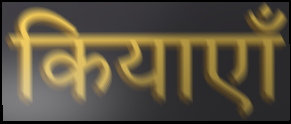
कियाएाँ